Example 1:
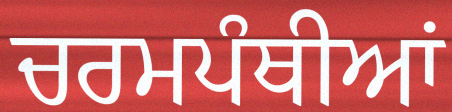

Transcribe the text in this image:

ਚਰਮਪੰਥੀਆਂ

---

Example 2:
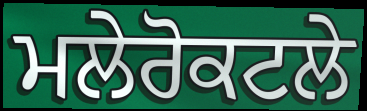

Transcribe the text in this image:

ਮਲੇਰੋਕਟਲੇ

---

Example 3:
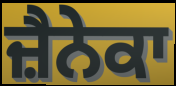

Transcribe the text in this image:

ਜ਼ੈਨੇਕਾ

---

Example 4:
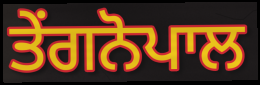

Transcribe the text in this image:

ਤੇਂਗਨੋਪਾਲ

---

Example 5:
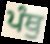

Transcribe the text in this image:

ਪੰਥੁ